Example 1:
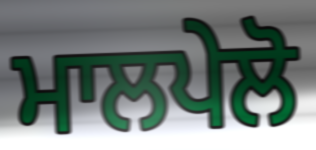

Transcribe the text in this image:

ਮਾਲਪੇਲੋ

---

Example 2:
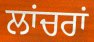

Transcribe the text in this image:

ਲਾਂਚਰਾਂ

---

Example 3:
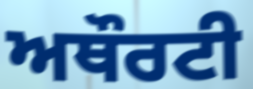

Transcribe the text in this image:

ਅਥੌਰਟੀ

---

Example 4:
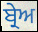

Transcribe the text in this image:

ਬ੍ਰੇਅ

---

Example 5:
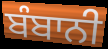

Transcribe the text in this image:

ਬੰਬਾਨੀ